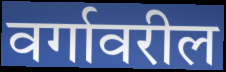
वर्गावरील